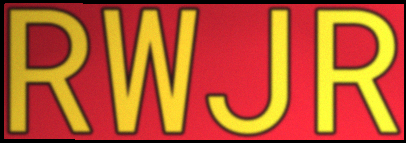
RWJR